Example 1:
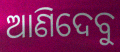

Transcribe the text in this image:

ଆଣିଦେବୁ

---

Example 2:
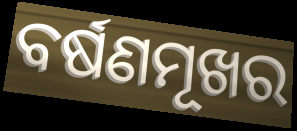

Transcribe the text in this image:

ବର୍ଷଣମୂଖର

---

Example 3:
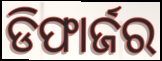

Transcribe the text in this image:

ଡିଫାର୍ଜର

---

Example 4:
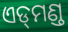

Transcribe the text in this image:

ଏଡ୍‌ମଣ୍ଡ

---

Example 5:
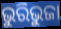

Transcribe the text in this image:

ଭୁରିଭୁଜା